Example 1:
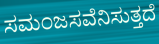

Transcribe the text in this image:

ಸಮಂಜಸವೆನಿಸುತ್ತದೆ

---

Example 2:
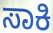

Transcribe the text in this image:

ಸಾಕಿ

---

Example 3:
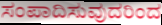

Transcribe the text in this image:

ಸಂಪಾದಿಸುವುದರಿಂದ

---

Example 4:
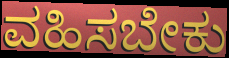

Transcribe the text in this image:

ವಹಿಸಬೇಕು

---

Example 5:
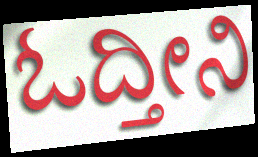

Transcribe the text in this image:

ಓದ್ತೀನಿ